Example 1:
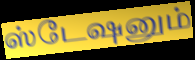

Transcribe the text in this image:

ஸ்டேஷனும்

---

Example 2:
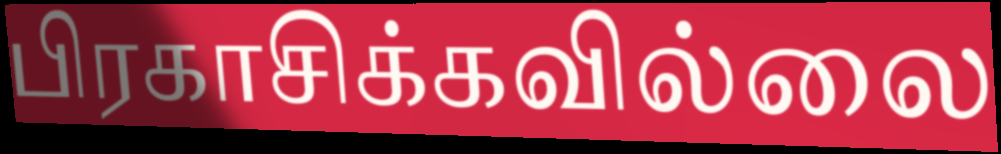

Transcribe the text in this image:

பிரகாசிக்கவில்லை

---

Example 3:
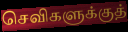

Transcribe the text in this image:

செவிகளுக்குத்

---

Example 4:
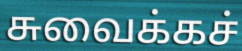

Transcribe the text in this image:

சுவைக்கச்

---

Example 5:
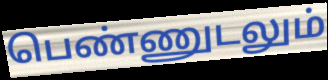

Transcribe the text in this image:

பெண்ணுடலும்